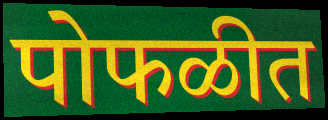
पोफळीत